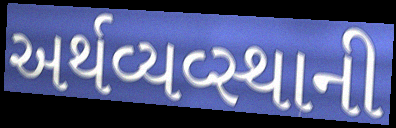
અર્થવ્યવ્સ્થાની